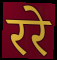
ररे